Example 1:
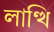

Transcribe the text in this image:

লাত্থি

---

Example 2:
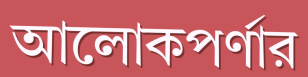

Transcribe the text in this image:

আলোকপর্ণার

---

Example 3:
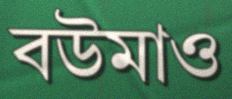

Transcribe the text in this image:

বউমাও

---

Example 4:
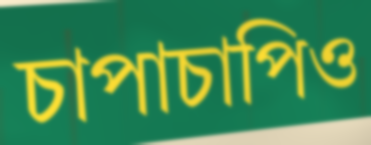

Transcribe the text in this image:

চাপাচাপিও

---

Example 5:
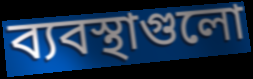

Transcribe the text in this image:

ব্যবস্থাগুলো